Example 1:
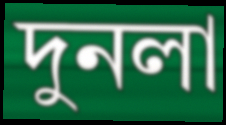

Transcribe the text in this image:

দুনলা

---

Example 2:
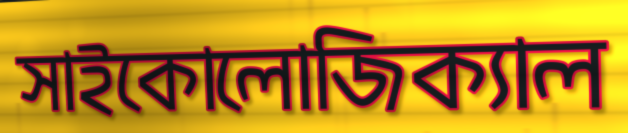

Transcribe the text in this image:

সাইকোলোজিক্যাল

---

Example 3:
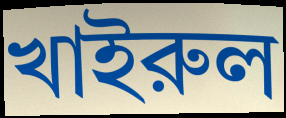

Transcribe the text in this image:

খাইরুল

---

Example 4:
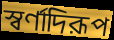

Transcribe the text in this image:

স্বর্ণাদিরূপ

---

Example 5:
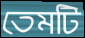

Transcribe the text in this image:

তেমটি